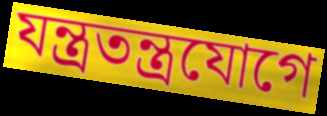
যন্ত্রতন্ত্রযোগে